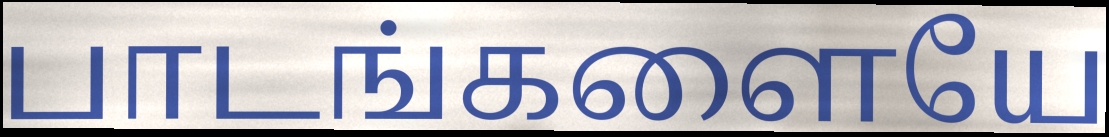
பாடங்களையே